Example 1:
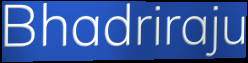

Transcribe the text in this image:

Bhadriraju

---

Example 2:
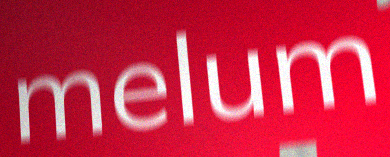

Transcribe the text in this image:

melum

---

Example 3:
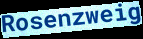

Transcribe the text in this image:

Rosenzweig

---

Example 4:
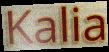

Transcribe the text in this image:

Kalia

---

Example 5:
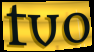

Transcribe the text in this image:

tuo